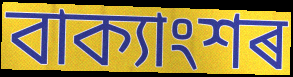
বাক্যাংশৰ